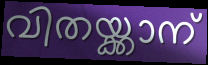
വിതയ്ക്കാന്